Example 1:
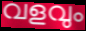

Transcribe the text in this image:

വളവും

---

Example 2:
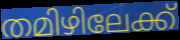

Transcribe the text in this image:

തമിഴിലേക്ക്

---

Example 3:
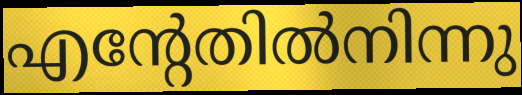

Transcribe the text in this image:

എന്റേതിൽനിന്നു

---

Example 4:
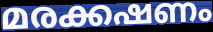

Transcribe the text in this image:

മരക്കഷണം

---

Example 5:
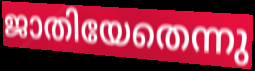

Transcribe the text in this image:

ജാതിയേതെന്നു